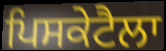
ਪਿਸਕੇਟੈਲਾ